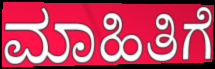
ಮಾಹಿತಿಗೆ